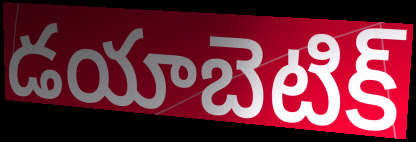
డయాబెటిక్